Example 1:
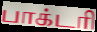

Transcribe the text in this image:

பாக்டரி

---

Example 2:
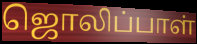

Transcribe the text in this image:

ஜொலிப்பாள்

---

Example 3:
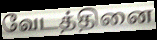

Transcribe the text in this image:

வேடத்தினை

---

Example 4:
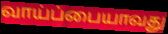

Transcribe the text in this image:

வாய்ப்பையாவது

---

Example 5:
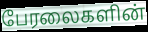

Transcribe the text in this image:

பேரலைகளின்